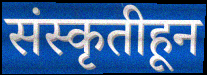
संस्कृतीहून